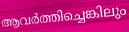
ആവർത്തിച്ചെങ്കിലും